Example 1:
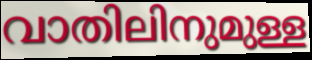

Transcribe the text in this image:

വാതിലിനുമുള്ള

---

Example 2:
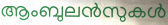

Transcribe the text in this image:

ആംബുലൻസുകൾ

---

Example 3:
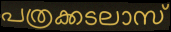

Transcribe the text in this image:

പത്രക്കടലാസ്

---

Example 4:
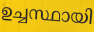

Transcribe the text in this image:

ഉച്ചസ്ഥായി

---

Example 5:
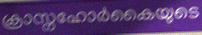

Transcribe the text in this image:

ക്രാസ്നഹോർകൈയുടെ